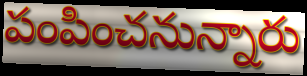
పంపించనున్నారు